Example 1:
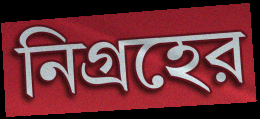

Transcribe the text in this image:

নিগ্রহের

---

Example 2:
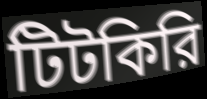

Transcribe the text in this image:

টিটকিরি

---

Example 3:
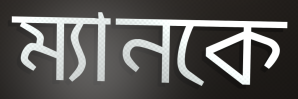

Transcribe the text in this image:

ম্যানকে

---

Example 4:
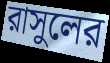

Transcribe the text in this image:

রাসুলের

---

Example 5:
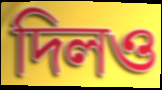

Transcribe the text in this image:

দিলও